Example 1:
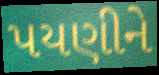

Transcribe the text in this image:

પયણીને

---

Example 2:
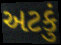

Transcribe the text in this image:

અટકું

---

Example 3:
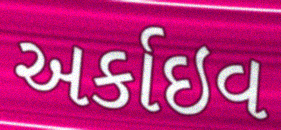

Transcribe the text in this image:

અર્કાઇવ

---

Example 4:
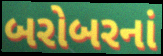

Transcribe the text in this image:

બરોબરનાં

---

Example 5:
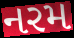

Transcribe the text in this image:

નરમ